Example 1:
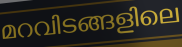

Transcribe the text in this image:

മറവിടങ്ങളിലെ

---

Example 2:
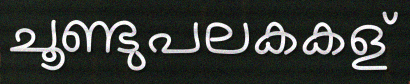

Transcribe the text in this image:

ചൂണ്ടുപലകകള്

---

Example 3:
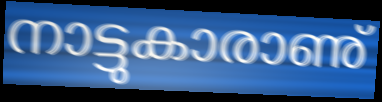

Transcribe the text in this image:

നാട്ടുകാരാണു്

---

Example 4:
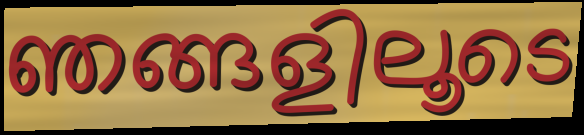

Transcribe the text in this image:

ഞങ്ങളിലൂടെ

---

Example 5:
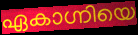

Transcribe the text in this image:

ഏകാഗ്നിയെ